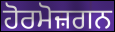
ਹੋਰਮੋਜ਼ਗਨ